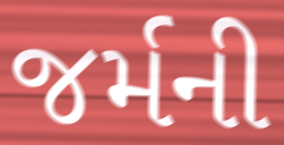
જર્મની